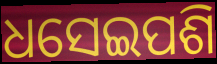
ଧସେଇପଶି